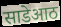
साडेआठ